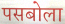
पसबोला